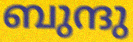
ബുന്ദു